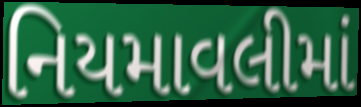
નિયમાવલીમાં